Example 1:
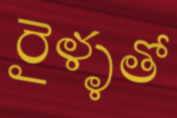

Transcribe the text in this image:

రైళ్ళతో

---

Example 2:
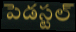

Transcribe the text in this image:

పెడస్టల్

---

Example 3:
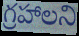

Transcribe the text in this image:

గ్రహాలని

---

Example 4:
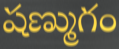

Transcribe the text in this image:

షణ్ముగం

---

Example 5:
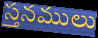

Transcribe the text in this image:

స్తనములు